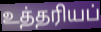
உத்தரியப்